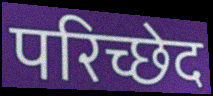
परिच्छेद